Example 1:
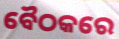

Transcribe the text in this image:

ବୈଠକରେ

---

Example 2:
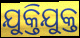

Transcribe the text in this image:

ଯୁକ୍ତିଯୁକ୍ତ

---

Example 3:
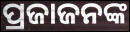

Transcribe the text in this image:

ପ୍ରଜାଜନଙ୍କ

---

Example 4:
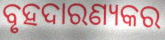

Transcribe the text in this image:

ବୃହଦାରଣ୍ୟକର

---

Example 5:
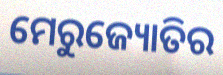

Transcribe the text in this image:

ମେରୁଜ୍ୟୋତିର